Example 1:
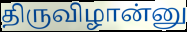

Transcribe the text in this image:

திருவிழான்னு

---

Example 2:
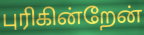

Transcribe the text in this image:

புரிகின்றேன்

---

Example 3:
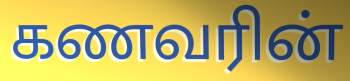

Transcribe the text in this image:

கணவரின்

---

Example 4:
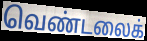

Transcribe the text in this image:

வெண்டலைக்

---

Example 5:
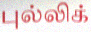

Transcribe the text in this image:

புல்லிக்